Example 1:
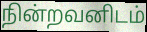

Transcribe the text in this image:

நின்றவனிடம்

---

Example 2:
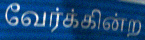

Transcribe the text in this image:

வேர்க்கின்ற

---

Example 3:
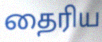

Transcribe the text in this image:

தைரிய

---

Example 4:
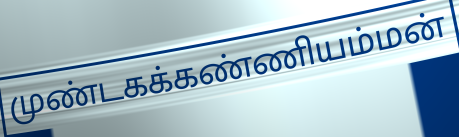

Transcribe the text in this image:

முண்டகக்கண்ணியம்மன்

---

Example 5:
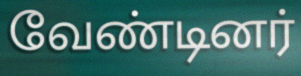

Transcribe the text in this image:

வேண்டினர்